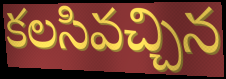
కలసివచ్చిన